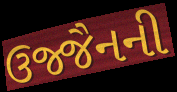
ઉજ્જૈનની